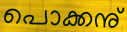
പൊക്കനു്